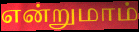
என்றுமாம்